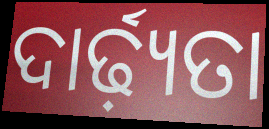
ଦାର୍ଢ଼୍ୟତା